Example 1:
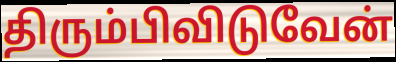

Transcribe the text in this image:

திரும்பிவிடுவேன்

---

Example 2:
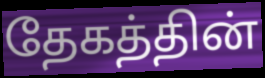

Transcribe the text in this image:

தேகத்தின்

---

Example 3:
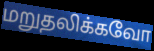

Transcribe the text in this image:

மறுதலிக்கவோ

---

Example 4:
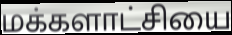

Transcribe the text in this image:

மக்களாட்சியை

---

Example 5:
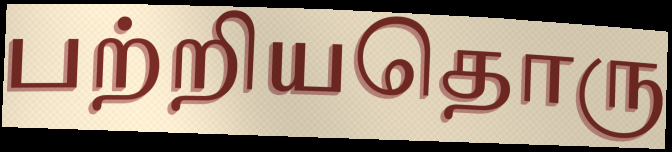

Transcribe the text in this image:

பற்றியதொரு